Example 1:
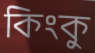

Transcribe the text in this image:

কিংকু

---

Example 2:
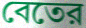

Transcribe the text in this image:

বেতের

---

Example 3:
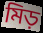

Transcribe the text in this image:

মিড়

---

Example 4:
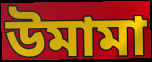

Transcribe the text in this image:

উমামা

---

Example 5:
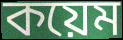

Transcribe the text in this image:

কয়েম